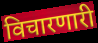
विचारणारी